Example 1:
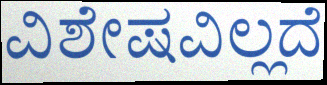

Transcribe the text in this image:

ವಿಶೇಷವಿಲ್ಲದೆ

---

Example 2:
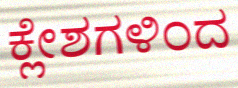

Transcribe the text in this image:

ಕ್ಲೇಶಗಳಿಂದ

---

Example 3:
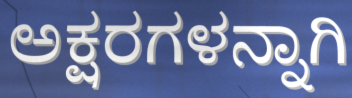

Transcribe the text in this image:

ಅಕ್ಷರಗಳನ್ನಾಗಿ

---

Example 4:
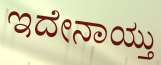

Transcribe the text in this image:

ಇದೇನಾಯ್ತು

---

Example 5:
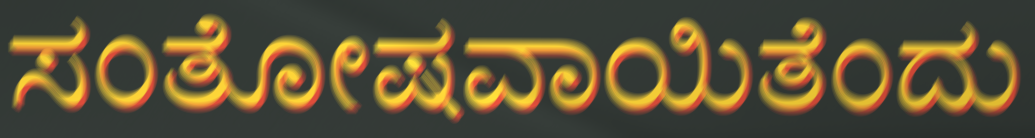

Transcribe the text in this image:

ಸಂತೋಷವಾಯಿತೆಂದು